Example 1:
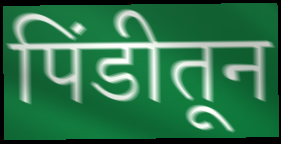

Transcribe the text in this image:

पिंडीतून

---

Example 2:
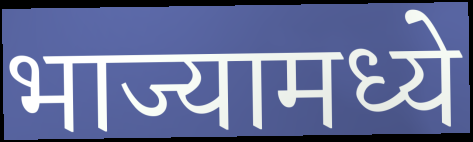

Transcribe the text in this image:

भाज्यामध्ये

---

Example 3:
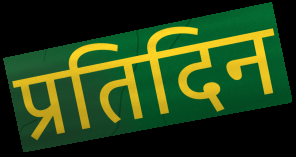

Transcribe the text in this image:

प्रतिदिन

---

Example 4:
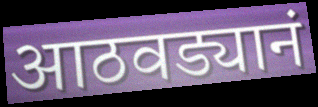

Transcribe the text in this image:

आठवड्यानं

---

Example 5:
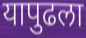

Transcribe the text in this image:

यापुढला